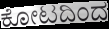
ಕೋಟದಿಂದ